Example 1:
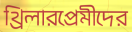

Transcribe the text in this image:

থ্রিলারপ্রেমীদের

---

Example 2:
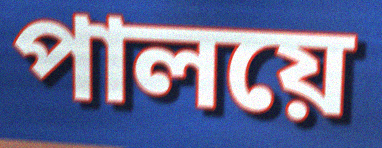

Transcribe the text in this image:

পালয়ে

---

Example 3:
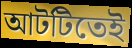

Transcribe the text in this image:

আটটিতেই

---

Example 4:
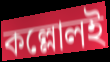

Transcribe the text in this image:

কল্লোলই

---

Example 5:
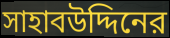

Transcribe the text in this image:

সাহাবউদ্দিনের